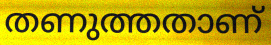
തണുത്തതാണ്